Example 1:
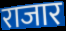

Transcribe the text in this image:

राजार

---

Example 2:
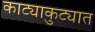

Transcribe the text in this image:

काट्याकुट्यात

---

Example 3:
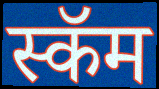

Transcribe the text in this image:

स्कॅम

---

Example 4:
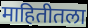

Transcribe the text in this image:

माहितीतला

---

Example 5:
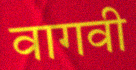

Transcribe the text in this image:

वागवी